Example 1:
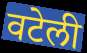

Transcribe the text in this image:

वटेली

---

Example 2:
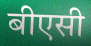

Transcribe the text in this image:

बीएसी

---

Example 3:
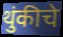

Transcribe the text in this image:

थुंकीचे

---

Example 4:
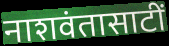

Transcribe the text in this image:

नाशवंतासाटीं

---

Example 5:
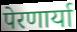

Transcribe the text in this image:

पेरणार्या